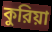
কুরিয়া